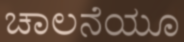
ಚಾಲನೆಯೂ